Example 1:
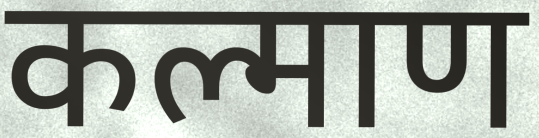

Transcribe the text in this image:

कल्माण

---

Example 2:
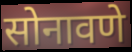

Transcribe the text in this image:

सोनावणे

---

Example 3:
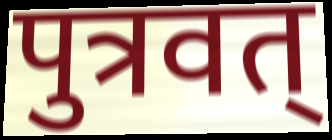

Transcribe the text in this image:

पुत्रवत्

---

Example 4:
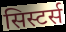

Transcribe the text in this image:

सिस्टर्स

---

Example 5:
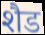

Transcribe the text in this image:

शैड